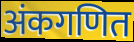
अंकगणित